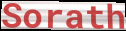
Sorath